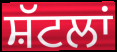
ਸ਼ੱਟਲਾਂ